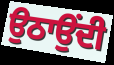
ਉਠਾਉਂਦੀ